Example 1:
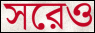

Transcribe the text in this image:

সরেও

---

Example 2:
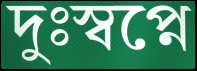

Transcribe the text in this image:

দুঃস্বপ্নে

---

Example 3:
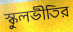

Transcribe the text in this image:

স্কুলভীতির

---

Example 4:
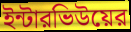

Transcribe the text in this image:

ইন্টারভিউয়ের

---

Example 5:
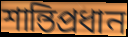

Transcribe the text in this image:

শান্তিপ্রধান